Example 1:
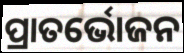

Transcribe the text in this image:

ପ୍ରାତର୍ଭୋଜନ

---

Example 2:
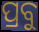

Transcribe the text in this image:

ପ୍ରବୁ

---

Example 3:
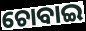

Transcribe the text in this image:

ଚୋବାଇ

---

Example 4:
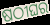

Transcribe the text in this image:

ଷଠୀଘର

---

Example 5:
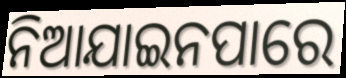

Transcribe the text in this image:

ନିଆଯାଇନପାରେ